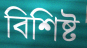
বিশিষ্ট